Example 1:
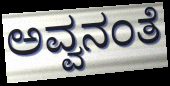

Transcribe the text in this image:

ಅವ್ವನಂತೆ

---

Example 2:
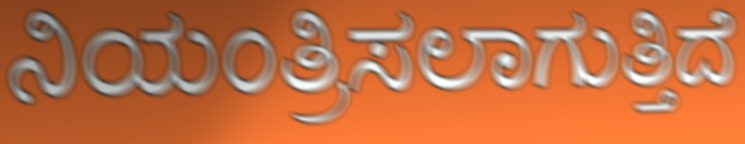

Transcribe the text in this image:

ನಿಯಂತ್ರಿಸಲಾಗುತ್ತಿದೆ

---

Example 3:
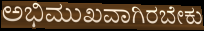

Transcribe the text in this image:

ಅಭಿಮುಖವಾಗಿರಬೇಕು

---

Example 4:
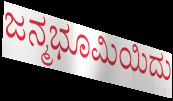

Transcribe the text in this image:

ಜನ್ಮಭೂಮಿಯಿದು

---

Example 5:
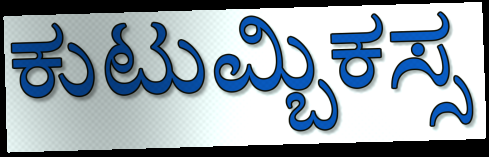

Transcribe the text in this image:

ಕುಟುಮ್ಬಿಕಸ್ಸ